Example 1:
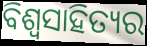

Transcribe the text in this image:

ବିଶ୍ଵସାହିତ୍ୟର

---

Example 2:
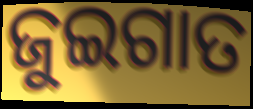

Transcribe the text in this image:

ଜୁଇଗାତ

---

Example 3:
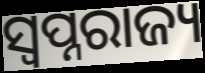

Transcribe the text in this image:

ସ୍ୱପ୍ନରାଜ୍ୟ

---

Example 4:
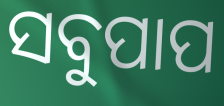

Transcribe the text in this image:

ସବୁପାପ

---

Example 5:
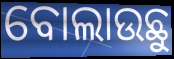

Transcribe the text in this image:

ବୋଲାଉଛୁ